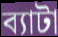
ব্যাটা